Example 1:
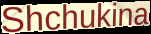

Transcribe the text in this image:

Shchukina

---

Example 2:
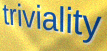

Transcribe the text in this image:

triviality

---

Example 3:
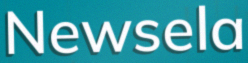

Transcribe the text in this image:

Newsela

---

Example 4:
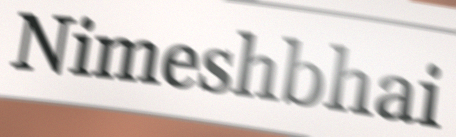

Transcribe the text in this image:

Nimeshbhai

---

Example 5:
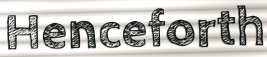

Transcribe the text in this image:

Henceforth